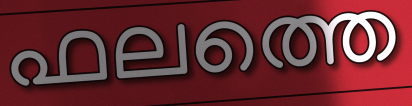
ഫലത്തെ